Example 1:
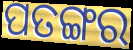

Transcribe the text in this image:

ପତଙ୍ଗର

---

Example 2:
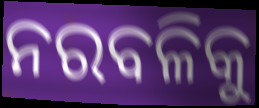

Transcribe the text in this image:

ନରବଳିକୁ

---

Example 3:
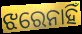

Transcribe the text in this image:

ଝରେନାହିଁ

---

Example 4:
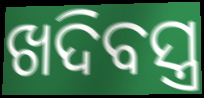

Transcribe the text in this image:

ଖଦିବସ୍ତ୍ର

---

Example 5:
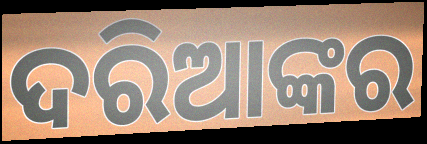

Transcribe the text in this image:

ଦରିଆଙ୍କର